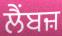
ਲੈਂਬਜ਼